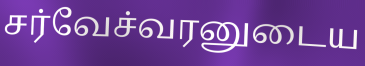
சர்வேச்வரனுடைய